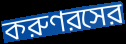
করুণরসের